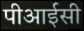
पीआईसी